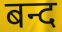
बन्द